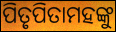
ପିତୃପିତାମହଙ୍କୁ